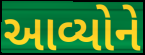
આવ્યોને